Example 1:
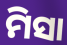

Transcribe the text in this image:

ମିସା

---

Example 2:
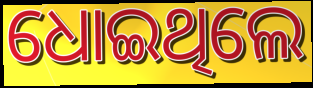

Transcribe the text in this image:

ଧୋଇଥିଲେ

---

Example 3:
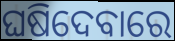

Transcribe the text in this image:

ଘଷିଦେବାରେ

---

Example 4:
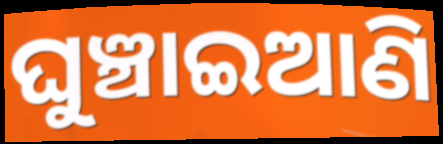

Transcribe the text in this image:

ଘୁଞ୍ଚାଇଆଣି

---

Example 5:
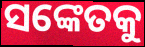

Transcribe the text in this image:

ସଙ୍କେତକୁ